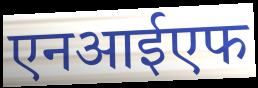
एनआईएफ